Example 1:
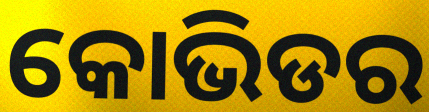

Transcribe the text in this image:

କୋଭିଡର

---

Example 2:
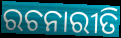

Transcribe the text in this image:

ରଚନାରୀତି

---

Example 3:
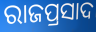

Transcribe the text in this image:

ରାଜପ୍ରସାଦ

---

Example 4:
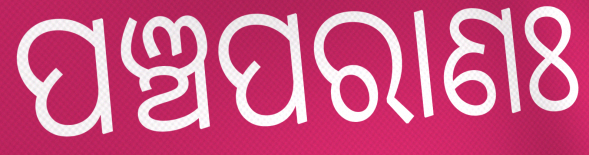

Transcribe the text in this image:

ପଞ୍ଚପରାଣଃ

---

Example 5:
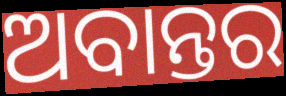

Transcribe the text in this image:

ଅବାନ୍ତର